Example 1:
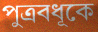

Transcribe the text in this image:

পুত্রবধূকে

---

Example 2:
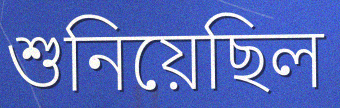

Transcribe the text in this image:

শুনিয়েছিল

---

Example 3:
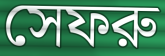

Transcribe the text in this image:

সেফরু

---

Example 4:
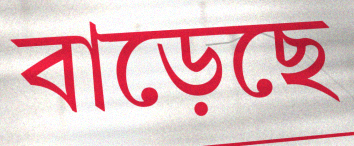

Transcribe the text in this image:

বাড়েছে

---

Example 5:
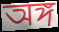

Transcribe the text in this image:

অঙ্গ